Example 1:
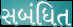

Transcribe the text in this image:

સબંધિત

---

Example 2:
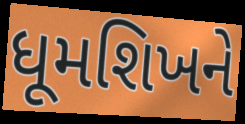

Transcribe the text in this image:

ધૂમશિખને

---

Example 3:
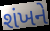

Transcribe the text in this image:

શંખને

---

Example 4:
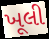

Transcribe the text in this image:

ખૂલી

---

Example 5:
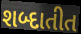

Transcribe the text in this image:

શબ્દાતીત